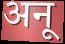
अनू